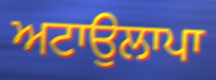
ਅਟਾਉਲਾਪਾ